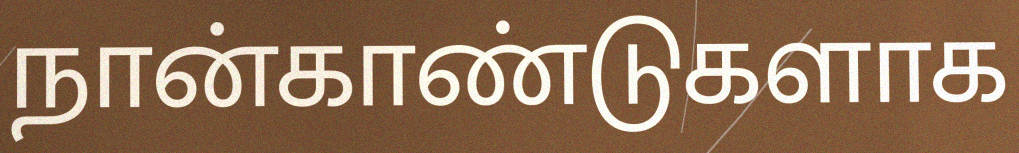
நான்காண்டுகளாக